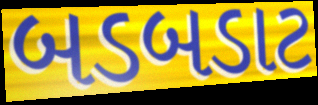
બડબડાટ